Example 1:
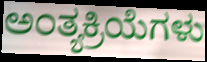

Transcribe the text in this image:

ಅಂತ್ಯಕ್ರಿಯೆಗಳು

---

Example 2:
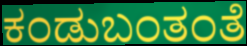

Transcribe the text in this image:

ಕಂಡುಬಂತಂತೆ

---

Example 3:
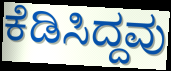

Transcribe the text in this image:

ಕೆಡಿಸಿದ್ದವು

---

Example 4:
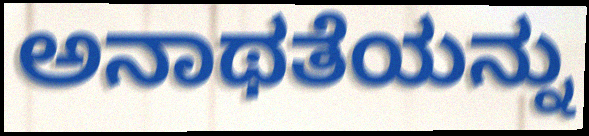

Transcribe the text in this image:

ಅನಾಥತೆಯನ್ನು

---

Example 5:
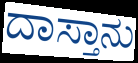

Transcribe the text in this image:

ದಾಸ್ತಾನು